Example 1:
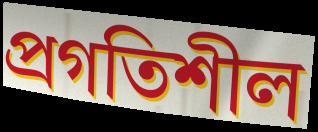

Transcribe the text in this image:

প্ৰগতিশীল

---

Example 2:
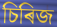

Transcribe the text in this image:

চিৰিজ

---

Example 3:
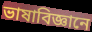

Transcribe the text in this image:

ভাষাবিজ্ঞানে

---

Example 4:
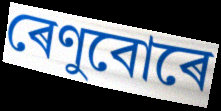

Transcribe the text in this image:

ৰেণুবোৰে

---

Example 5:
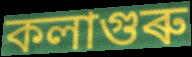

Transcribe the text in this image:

কলাগুৰু